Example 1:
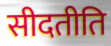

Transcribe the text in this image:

सीदतीति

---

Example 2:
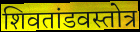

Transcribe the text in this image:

शिवतांडवस्तोत्र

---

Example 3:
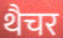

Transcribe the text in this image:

थैचर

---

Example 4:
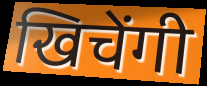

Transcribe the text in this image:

खिचेंगी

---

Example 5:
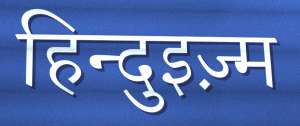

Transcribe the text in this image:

हिन्दुइज़्म